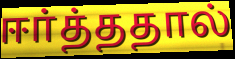
ஈர்த்ததால்